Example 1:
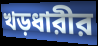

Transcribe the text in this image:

খড়ধারীর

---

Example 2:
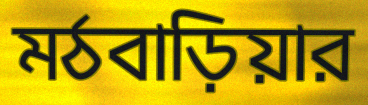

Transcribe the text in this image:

মঠবাড়িয়ার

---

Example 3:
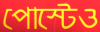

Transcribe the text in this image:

পোস্টেও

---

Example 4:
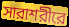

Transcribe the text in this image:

সারাশরীরে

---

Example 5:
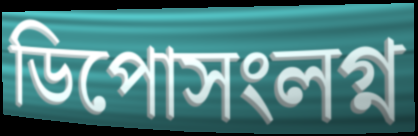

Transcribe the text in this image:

ডিপোসংলগ্ন